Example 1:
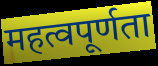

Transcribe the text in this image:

महत्वपूर्णता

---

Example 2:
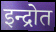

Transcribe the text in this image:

इन्द्रोत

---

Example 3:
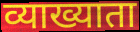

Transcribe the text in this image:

व्याख्याता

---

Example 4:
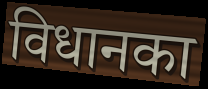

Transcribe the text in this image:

विधानका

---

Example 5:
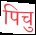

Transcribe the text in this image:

पिचु